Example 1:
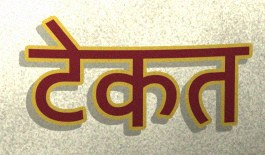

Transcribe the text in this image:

टेकत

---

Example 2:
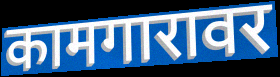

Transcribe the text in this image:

कामगारावर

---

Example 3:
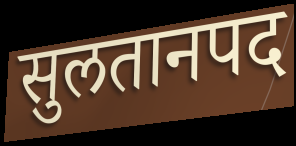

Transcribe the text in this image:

सुलतानपद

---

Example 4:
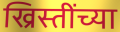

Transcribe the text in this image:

ख्रिस्तींच्या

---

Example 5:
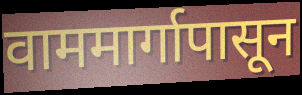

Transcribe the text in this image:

वाममार्गापासून